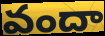
వందా